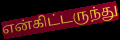
என்கிட்டருந்து